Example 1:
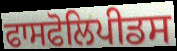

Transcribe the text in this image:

ਫਾਸਫੋਲਿਪੀਡਸ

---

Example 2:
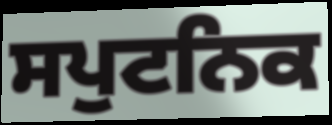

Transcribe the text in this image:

ਸਪੁਟਨਿਕ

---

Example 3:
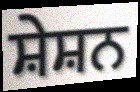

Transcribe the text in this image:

ਸ਼ੇਸ਼ਨ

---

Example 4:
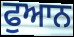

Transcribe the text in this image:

ਫੁਆਨ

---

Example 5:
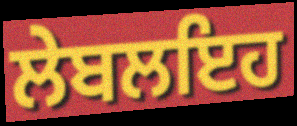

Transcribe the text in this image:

ਲੇਬਲਇਹ